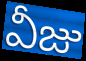
వీజు